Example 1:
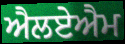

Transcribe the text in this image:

ਐਲਏਐਮ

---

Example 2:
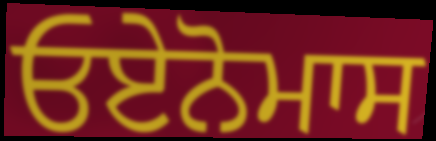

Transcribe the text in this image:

ਓਏਨੋਮਾਸ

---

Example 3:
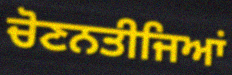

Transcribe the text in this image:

ਚੋਣਨਤੀਜਿਆਂ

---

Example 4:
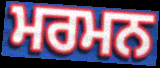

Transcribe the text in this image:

ਮਰਮਨ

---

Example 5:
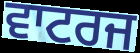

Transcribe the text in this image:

ਵਾਟਰਜ